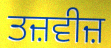
ਤਜ਼ਵੀਜ਼